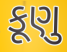
કૂણુ